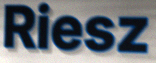
Riesz